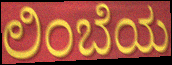
ಲಿಂಬೆಯ